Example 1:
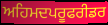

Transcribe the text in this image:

ਅਹਿਮਦਪਰੂਫਰੀਡਰ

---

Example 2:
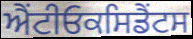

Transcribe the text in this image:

ਐਂਟੀਓਕਸਿਡੈਂਟਸ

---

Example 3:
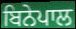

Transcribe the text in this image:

ਬਿਨੇਪਾਲ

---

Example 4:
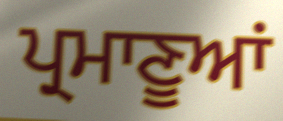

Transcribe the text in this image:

ਪ੍ਰਮਾਣੂਆਂ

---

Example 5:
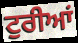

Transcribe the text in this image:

ਟੁਰੀਆਂ